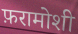
फ़रामोशी